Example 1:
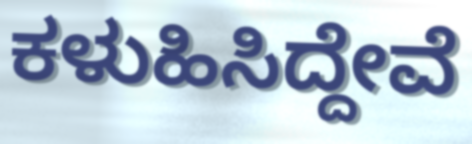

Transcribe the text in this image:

ಕಳುಹಿಸಿದ್ದೇವೆ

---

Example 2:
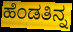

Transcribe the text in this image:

ಹೆಂಡತಿನ್ನ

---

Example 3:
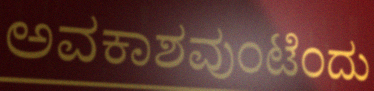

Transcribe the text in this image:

ಅವಕಾಶವುಂಟೆಂದು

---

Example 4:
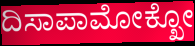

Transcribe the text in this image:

ದಿಸಾಪಾಮೋಕ್ಖೋ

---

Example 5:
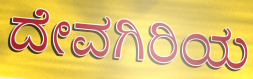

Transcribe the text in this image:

ದೇವಗಿರಿಯ